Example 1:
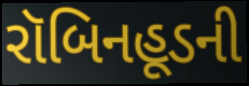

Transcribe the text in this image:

રૉબિનહૂડની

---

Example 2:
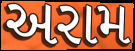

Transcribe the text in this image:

અરામ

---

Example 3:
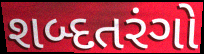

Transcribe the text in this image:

શબ્દતરંગો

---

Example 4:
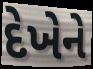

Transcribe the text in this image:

દેખેને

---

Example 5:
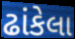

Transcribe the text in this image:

ઢાંકેલા